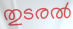
തുടരൽ